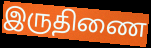
இருதிணை